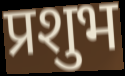
प्रशुभ